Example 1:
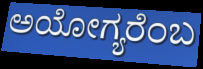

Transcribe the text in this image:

ಅಯೋಗ್ಯರೆಂಬ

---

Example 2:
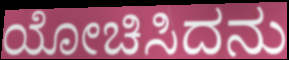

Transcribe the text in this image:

ಯೋಚಿಸಿದನು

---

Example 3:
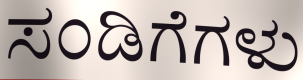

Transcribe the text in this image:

ಸಂಡಿಗೆಗಳು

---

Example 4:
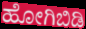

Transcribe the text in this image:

ಹೋಗಿಬಿಡಿ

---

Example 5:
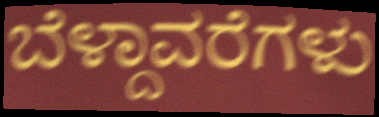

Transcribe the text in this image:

ಬೆಳ್ದಾವರೆಗಳು